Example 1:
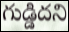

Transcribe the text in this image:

గుడ్డిదని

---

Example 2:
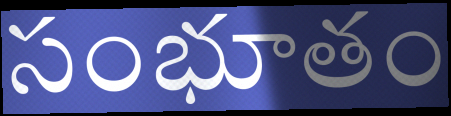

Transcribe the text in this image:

సంభూతం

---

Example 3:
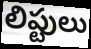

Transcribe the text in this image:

లిప్టులు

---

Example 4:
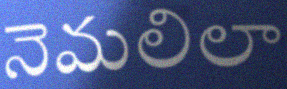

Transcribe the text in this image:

నెమలిలా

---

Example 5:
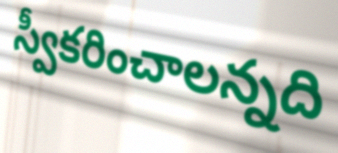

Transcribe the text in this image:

స్వీకరించాలన్నది